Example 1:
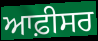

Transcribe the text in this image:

ਆਫ਼ੀਸਰ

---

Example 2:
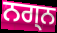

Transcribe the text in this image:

ਨਗ੍ਨ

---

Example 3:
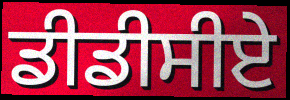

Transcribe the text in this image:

ਡੀਡੀਸੀਏ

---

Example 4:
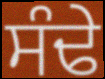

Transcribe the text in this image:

ਸੰਢੇ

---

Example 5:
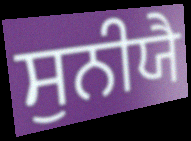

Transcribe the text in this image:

ਸੁਨੀਯੈ